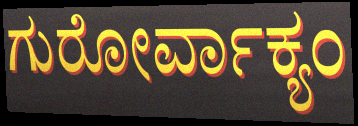
ಗುರೋರ್ವಾಕ್ಯಂ